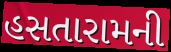
હસતારામની